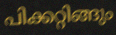
പിക്കറ്റിങ്ങും